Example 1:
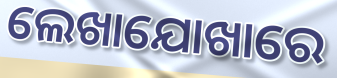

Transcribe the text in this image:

ଲେଖାଯୋଖାରେ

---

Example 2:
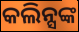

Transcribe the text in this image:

କଲିନ୍ସଙ୍କ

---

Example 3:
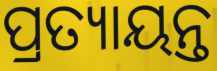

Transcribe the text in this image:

ପ୍ରତ୍ୟାୟନ୍ତ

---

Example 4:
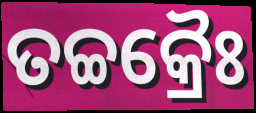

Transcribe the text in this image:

ତଚ୍ଚକ୍ରୈଃ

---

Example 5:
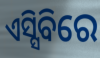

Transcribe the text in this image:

ଏସ୍ସିବିରେ